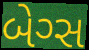
બેગ્સ